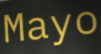
Mayo